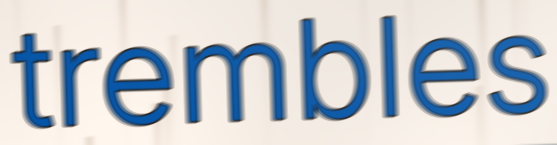
trembles